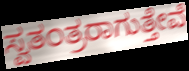
ಸ್ವತಂತ್ರರಾಗುತ್ತೇವೆ